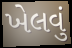
ખેલવું